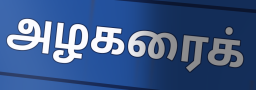
அழகரைக்